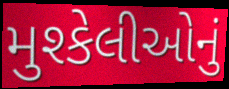
મુશ્કેલીઓનું